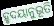
ହୃଦୟାନୁଭୂତି